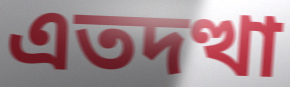
এতদত্থা